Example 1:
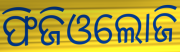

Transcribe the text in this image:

ଫିଜିଓଲୋଜି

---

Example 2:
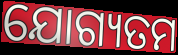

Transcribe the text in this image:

ଯୋଗ୍ୟତମ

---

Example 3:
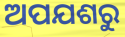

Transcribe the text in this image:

ଅପଯଶରୁ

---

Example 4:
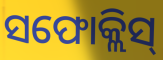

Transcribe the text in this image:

ସଫୋକ୍ଲିସ୍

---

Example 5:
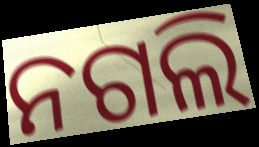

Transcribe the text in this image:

ନଗଲି